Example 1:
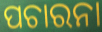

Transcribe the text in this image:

ପଚାରନା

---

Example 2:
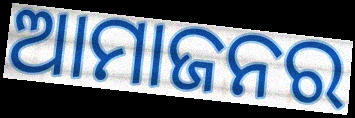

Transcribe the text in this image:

ଆମାଜନର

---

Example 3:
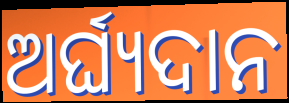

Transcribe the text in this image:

ଅର୍ଘ୍ୟଦାନ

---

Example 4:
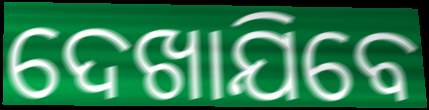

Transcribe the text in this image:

ଦେଖାଯିବେ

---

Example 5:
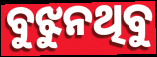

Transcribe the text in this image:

ବୁଝୁନଥିବୁ